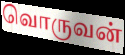
வொருவன்